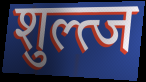
शुल्त्ज